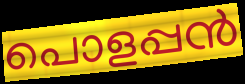
പൊളപ്പൻ